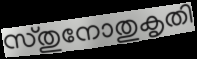
സ്തുനോതുകൃതി